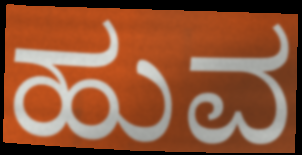
ಹುವ